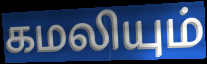
கமலியும்